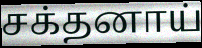
சக்தனாய்